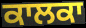
ਕਾਲਕਾ